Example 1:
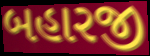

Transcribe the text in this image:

બહારજી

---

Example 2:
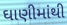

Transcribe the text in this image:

ઘાણીમાંથી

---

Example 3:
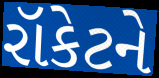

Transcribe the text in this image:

રૉકેટને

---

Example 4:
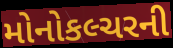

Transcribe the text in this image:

મોનોકલ્ચરની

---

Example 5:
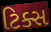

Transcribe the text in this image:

ટિક્સ